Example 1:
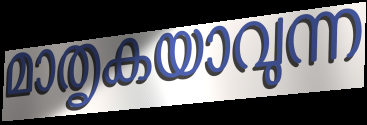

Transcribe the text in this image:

മാതൃകയാവുന്ന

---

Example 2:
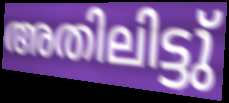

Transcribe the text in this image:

അതിലിട്ടു്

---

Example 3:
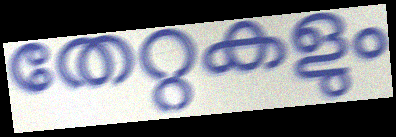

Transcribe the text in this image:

തേറ്റകളും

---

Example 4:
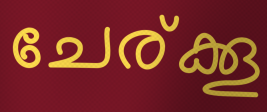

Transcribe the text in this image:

ചേര്ക്കൂ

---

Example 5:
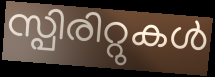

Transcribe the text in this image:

സ്പിരിറ്റുകൾ